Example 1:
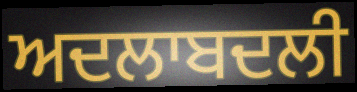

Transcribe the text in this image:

ਅਦਲਾਬਦਲੀ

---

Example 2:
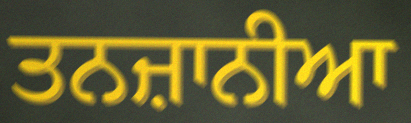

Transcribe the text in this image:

ਤਨਜ਼ਾਨੀਆ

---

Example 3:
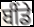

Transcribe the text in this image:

ਬੀਂਡੇ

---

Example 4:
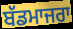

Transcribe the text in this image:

ਬੱਡਮਾਜਰਾ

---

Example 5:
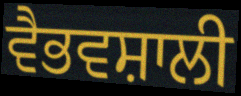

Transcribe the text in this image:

ਵੈਭਵਸ਼ਾਲੀ